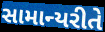
સામાન્યરીતે